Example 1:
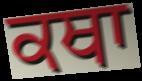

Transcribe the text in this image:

ਕਥਾ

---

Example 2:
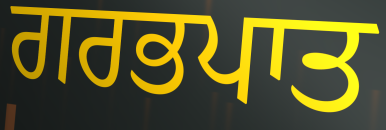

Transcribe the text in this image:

ਗਰਭਪਾਤ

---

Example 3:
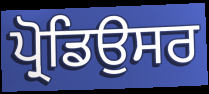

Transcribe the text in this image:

ਪ੍ਰੋਡਿਉਸਰ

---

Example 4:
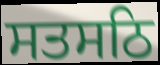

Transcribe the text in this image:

ਸਤਸਠਿ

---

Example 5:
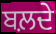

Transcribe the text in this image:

ਬਲ਼ਦੇ